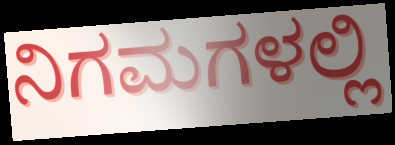
ನಿಗಮಗಳಲ್ಲಿ